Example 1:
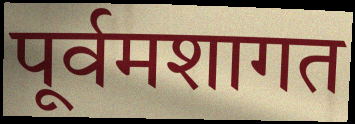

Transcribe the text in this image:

पूर्वमशागत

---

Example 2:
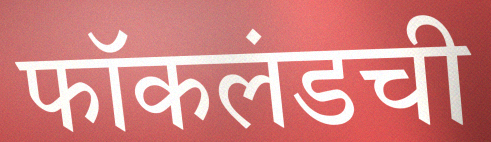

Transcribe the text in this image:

फॉकलंडची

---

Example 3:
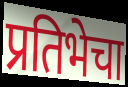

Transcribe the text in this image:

प्रतिभेचा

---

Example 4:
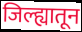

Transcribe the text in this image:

जिल्ह्यातून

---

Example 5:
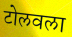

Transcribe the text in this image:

टोलवला